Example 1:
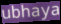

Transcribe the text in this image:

ubhaya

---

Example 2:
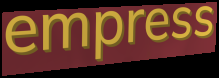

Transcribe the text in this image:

empress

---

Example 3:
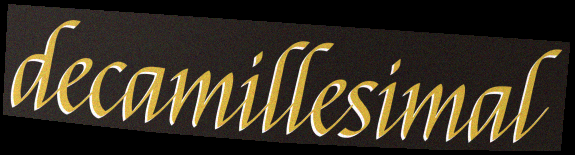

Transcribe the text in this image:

decamillesimal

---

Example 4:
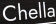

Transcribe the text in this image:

Chella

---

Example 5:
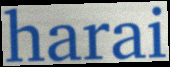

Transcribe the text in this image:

harai